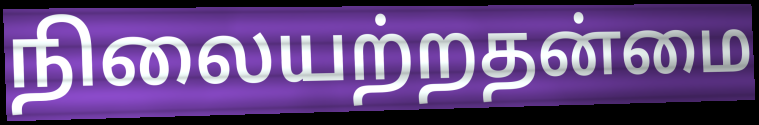
நிலையற்றதன்மை